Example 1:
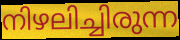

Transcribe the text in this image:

നിഴലിച്ചിരുന്ന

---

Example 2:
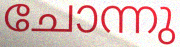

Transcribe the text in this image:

ചോന്നു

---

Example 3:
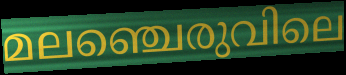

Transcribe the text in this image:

മലഞ്ചെരുവിലെ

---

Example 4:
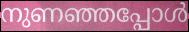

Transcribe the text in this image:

നുണഞ്ഞപ്പോൾ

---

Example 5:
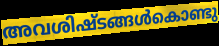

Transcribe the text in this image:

അവശിഷ്ടങ്ങൾകൊണ്ടു